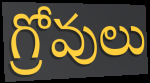
గ్రోవులు